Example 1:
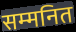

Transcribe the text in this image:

सम्मनित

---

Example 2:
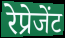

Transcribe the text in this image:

रेप्रेजेंट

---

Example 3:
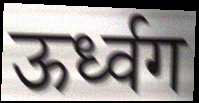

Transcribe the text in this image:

ऊर्ध्वग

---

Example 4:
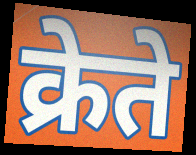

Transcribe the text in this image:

क्रेते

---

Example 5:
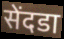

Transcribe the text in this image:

सेंदडा